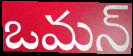
ఒమన్